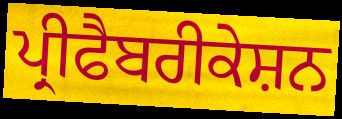
ਪ੍ਰੀਫੈਬਰੀਕੇਸ਼ਨ